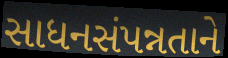
સાધનસંપન્નતાને